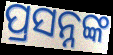
ପ୍ରସନ୍ନଙ୍କ